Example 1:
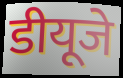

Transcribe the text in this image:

डीयूजे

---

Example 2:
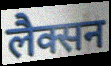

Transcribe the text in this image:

लैक्सन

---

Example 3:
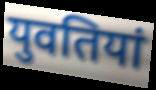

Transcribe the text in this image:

युवतियां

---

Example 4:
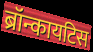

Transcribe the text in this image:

ब्रॉन्कायटिस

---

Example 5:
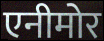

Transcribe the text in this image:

एनीमोर